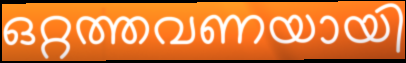
ഒറ്റത്തവണയായി